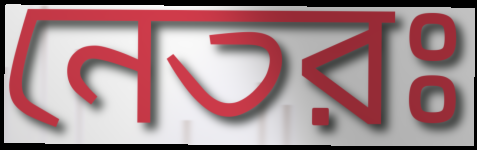
নেতরঃ